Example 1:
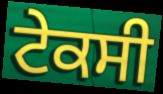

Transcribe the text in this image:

ਟੇਕਸੀ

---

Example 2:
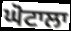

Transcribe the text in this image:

ਘੋਟਾਲਾ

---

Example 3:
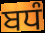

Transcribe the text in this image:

ਬਧੰ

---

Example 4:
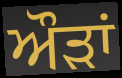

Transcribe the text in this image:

ਔੜਾਂ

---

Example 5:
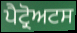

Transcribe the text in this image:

ਪੈਟ੍ਰੋਅਟਸ